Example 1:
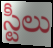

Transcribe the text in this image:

స్టీలు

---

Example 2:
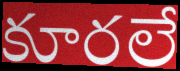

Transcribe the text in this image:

కూరలే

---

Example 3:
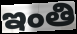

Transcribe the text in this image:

ఇంతి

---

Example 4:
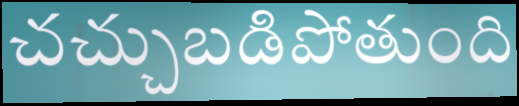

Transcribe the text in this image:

చచ్చుబడిపోతుంది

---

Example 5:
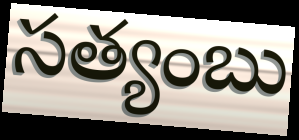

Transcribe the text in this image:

సత్యంబు